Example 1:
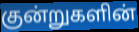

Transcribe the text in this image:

குன்றுகளின்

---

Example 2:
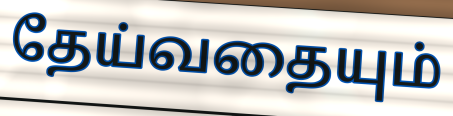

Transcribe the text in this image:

தேய்வதையும்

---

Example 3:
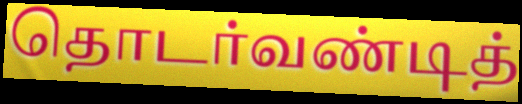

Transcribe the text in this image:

தொடர்வண்டித்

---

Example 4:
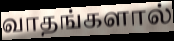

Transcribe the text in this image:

வாதங்களால்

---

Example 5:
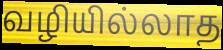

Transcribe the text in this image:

வழியில்லாத